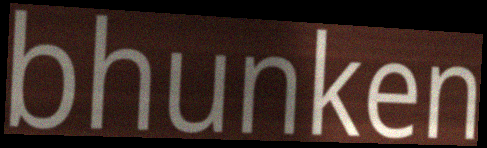
bhunken